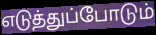
எடுத்துப்போடும்